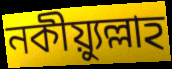
নকীয়্যুল্লাহ